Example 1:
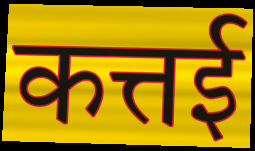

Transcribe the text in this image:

कत्तई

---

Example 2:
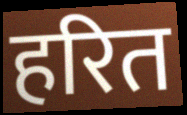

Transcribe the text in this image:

हरित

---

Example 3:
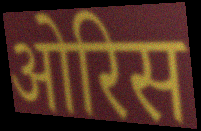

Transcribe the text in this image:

ओरिस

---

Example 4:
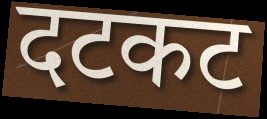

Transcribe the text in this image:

दटकट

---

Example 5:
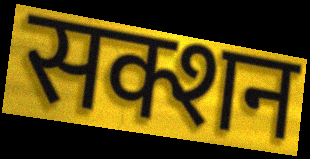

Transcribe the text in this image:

सक्शन